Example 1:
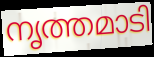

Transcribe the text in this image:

നൃത്തമാടി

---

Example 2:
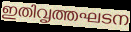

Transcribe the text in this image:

ഇതിവൃത്തഘടന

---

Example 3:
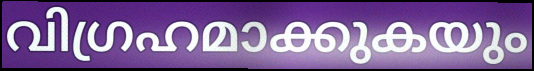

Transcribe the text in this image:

വിഗ്രഹമാക്കുകയും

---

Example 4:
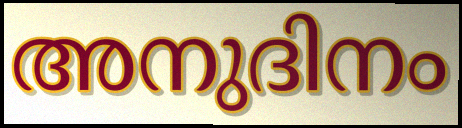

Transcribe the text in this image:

അനുദിനം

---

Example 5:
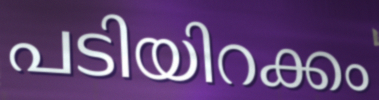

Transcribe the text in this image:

പടിയിറക്കം